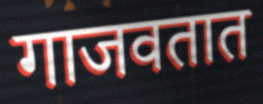
गाजवतात